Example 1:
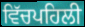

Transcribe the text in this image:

ਵਿੱਚਪਹਿਲੀ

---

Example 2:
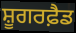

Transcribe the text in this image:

ਸ਼ੂਗਰਫ਼ੈਡ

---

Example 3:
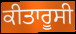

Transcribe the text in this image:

ਕੀਤਾਰੂਸੀ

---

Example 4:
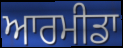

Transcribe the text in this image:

ਆਰਮੀਡਾ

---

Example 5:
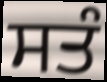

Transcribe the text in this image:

ਸਤੰ